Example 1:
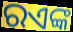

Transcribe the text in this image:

ରଏଙ୍କ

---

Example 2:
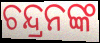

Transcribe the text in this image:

ଚନ୍ଦ୍ରନଙ୍କ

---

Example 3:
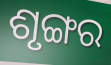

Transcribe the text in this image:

ଶୃଙ୍ଗର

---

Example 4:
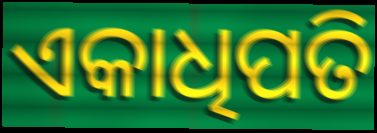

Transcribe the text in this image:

ଏକାଧିପତି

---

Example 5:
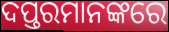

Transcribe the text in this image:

ଦପ୍ତରମାନଙ୍କରେ